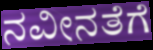
ನವೀನತೆಗೆ